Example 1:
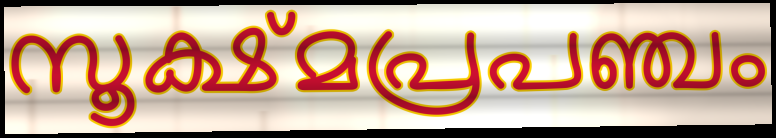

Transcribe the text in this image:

സൂക്ഷ്മപ്രപഞ്ചം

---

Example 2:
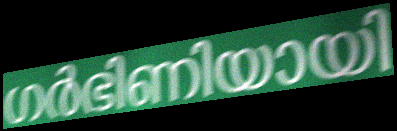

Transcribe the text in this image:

ഗർഭിണിയായി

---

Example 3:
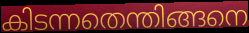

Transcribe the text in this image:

കിടന്നതെന്തിങ്ങനെ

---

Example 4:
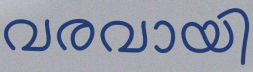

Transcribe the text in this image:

വരവായി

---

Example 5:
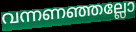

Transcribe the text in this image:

വന്നണഞ്ഞല്ലോ